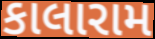
કાલારામ